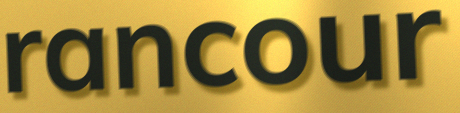
rancour